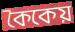
কৈকেয়